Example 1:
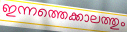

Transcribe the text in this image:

ഇന്നത്തെക്കാലത്തും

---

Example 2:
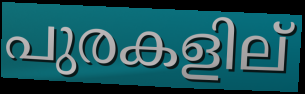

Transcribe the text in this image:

പുരകളില്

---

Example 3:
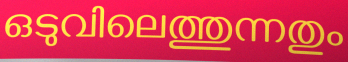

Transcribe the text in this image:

ഒടുവിലെത്തുന്നതും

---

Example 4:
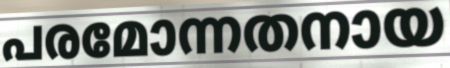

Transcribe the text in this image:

പരമോന്നതനായ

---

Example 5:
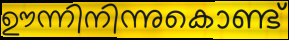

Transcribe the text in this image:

ഊന്നിനിന്നുകൊണ്ട്